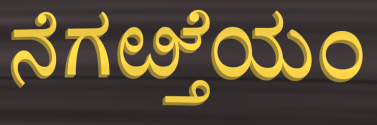
ನೆಗೞ್ತೆಯಂ